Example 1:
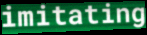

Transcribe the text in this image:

imitating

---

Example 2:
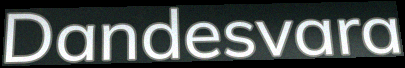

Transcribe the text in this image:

Dandesvara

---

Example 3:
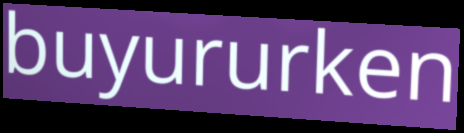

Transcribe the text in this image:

buyururken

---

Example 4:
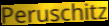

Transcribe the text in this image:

Peruschitz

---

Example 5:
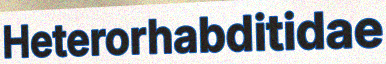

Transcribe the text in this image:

Heterorhabditidae